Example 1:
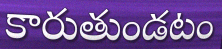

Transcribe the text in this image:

కారుతుండటం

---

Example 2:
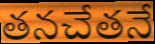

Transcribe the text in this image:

తనచేతనే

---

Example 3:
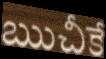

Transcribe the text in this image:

ఋచీకే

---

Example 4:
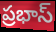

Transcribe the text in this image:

ప్రభాస్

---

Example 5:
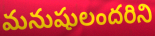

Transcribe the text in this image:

మనుషులందరిని